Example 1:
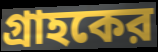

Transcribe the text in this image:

গ্রাহকের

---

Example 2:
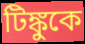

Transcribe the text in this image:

টিঙ্কুকে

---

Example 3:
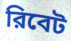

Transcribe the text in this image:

রিবেট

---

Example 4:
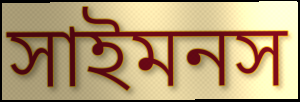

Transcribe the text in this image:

সাইমনস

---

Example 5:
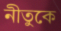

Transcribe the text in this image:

নীতুকে